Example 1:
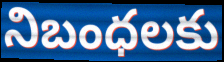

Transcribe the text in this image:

నిబంధలకు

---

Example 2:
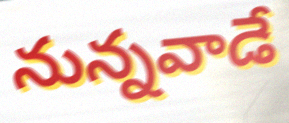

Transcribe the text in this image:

నున్నవాడే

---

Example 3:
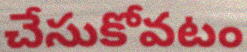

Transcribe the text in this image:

చేసుకోవటం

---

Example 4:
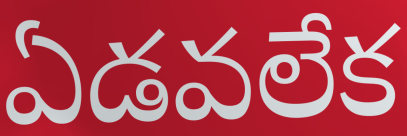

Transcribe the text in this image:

ఏడవలేక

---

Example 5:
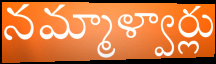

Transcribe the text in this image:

నమ్మాళ్వార్లు